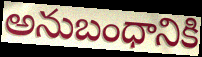
అనుబంధానికి